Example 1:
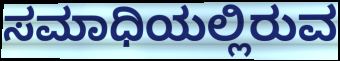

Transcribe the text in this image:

ಸಮಾಧಿಯಲ್ಲಿರುವ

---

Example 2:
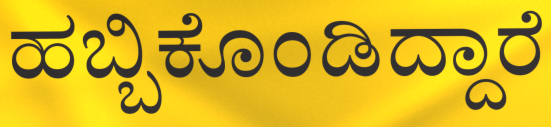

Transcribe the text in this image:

ಹಬ್ಬಿಕೊಂಡಿದ್ದಾರೆ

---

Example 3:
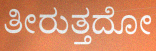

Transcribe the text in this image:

ತೀರುತ್ತದೋ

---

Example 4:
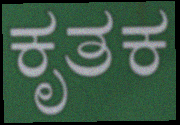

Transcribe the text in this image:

ಕೃತಕ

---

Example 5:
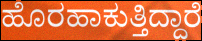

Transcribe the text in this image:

ಹೊರಹಾಕುತ್ತಿದ್ದಾರೆ